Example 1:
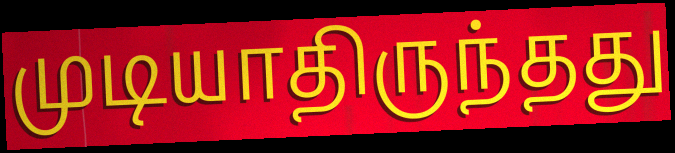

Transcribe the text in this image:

முடியாதிருந்தது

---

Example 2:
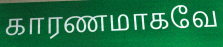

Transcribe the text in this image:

காரணமாகவே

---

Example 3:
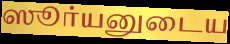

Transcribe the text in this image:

ஸூர்யனுடைய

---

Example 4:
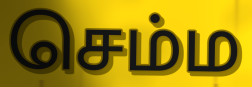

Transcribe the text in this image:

செம்ம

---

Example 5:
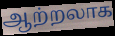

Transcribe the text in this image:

ஆற்றலாக